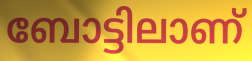
ബോട്ടിലാണ്